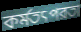
কর্মতৎপরতা